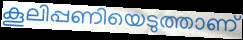
കൂലിപ്പണിയെടുത്താണ്